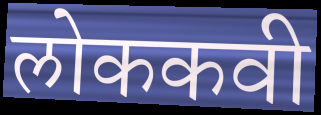
लोककवी